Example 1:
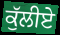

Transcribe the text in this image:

ਕੁੱਲੀਏ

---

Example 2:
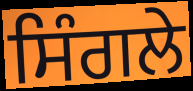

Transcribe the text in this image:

ਸਿੰਗਲੇ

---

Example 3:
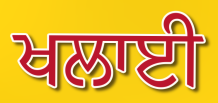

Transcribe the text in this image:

ਖਲਾਈ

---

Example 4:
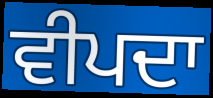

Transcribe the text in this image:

ਵੀਪਦਾ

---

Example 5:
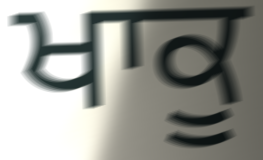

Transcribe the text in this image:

ਖਾਕੂ